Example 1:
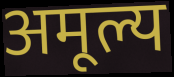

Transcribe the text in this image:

अमूल्य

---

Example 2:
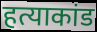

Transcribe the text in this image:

हत्याकांड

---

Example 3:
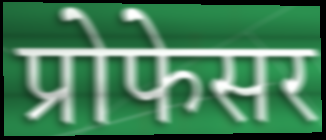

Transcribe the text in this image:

प्रोफेसर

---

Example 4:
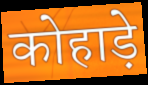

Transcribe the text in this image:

कोहाड़े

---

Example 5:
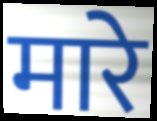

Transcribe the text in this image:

मारे